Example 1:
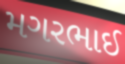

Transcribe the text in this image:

મગરભાઈ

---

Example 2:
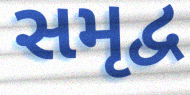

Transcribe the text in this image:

સમૃદ્વ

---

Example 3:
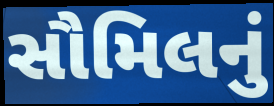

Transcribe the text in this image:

સૌમિલનું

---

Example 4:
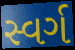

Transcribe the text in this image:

સ્વર્ગ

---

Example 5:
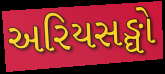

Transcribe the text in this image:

અરિયસઙ્ઘો